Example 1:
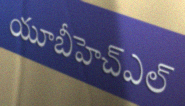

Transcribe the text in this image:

యూబీహెచ్ఎల్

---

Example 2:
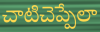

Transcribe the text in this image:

చాటిచెప్పేలా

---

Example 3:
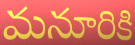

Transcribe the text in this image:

మనూరికి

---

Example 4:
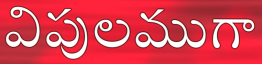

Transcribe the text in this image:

విపులముగా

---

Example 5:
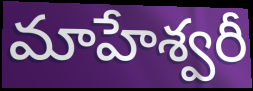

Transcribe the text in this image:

మాహేశ్వరీ